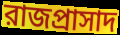
রাজপ্রাসাদ